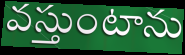
వస్తుంటాను